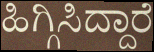
ಹಿಗ್ಗಿಸಿದ್ದಾರೆ